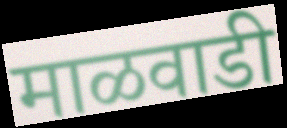
माळवाडी